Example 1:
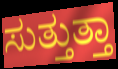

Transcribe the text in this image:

ಸುತ್ತುತ್ತಾ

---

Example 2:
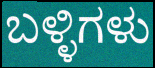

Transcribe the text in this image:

ಬಳ್ಳಿಗಳು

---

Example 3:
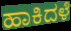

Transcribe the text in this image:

ಹಾಕಿದಳೆ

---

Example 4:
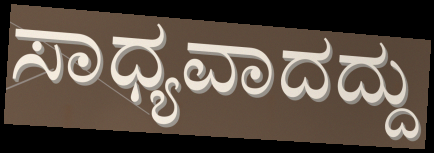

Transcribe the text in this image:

ಸಾಧ್ಯವಾದದ್ದು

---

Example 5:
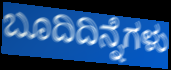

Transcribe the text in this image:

ಬೂದಿದಿನ್ನೆಗಳು